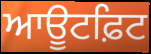
ਆਊਟਫ਼ਿਟ